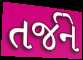
તર્જને